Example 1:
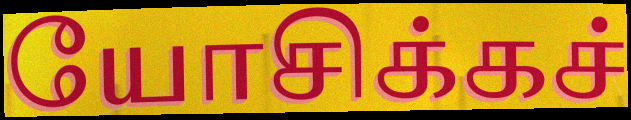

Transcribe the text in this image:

யோசிக்கச்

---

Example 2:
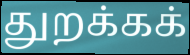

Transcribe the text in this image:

துறக்கக்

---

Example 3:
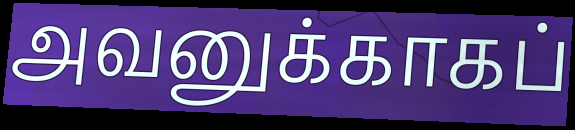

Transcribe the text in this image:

அவனுக்காகப்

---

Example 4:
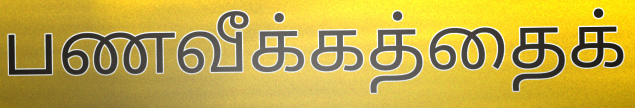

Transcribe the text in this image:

பணவீக்கத்தைக்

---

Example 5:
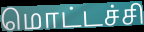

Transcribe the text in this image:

மொட்டச்சி